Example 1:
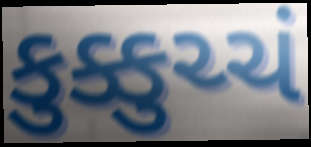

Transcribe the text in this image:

કુક્કુચ્ચં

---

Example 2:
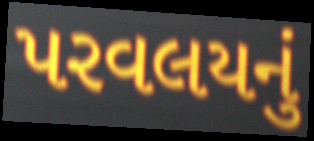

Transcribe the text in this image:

પરવલયનું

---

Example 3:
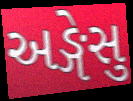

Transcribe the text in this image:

અઙ્ગેસુ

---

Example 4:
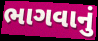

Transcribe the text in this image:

ભાગવાનું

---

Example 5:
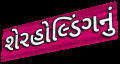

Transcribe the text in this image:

શેરહોલ્ડિંગનું